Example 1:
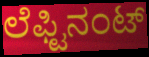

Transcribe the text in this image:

ಲೆಫ್ಟಿನಂಟ್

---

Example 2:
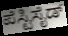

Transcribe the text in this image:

ಪೆಸ್ಟಿಸೈಡ್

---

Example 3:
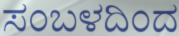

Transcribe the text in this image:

ಸಂಬಳದಿಂದ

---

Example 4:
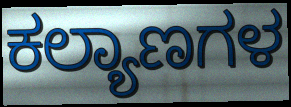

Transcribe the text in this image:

ಕಲ್ಯಾಣಗಳ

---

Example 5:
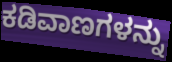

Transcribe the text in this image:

ಕಡಿವಾಣಗಳನ್ನು